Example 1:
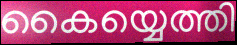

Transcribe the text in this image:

കൈയ്യെത്തി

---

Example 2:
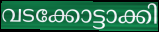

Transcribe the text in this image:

വടക്കോട്ടാക്കി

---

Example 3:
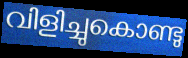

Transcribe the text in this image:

വിളിച്ചുകൊണ്ടു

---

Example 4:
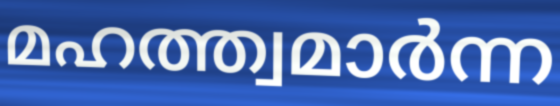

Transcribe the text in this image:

മഹത്ത്വമാർന്ന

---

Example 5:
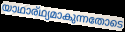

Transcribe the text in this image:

യാഥാര്ഥ്യമാകുന്നതോടെ